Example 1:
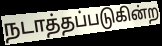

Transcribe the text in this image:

நடாத்தப்படுகின்ற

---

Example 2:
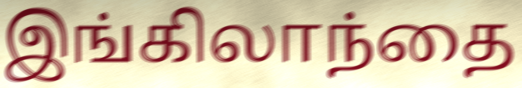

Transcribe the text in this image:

இங்கிலாந்தை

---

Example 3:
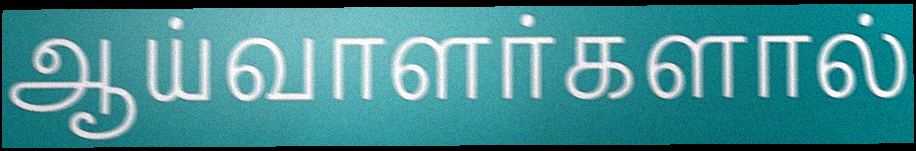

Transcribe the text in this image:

ஆய்வாளர்களால்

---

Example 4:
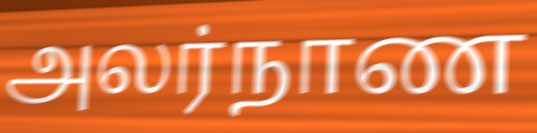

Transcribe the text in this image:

அலர்நாண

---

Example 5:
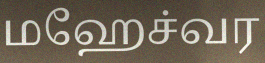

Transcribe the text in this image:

மஹேச்வர